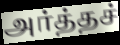
அர்த்தச்